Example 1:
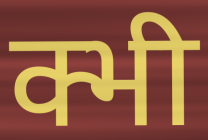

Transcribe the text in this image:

क्भी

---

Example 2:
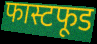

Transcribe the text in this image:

फास्‍टफूड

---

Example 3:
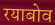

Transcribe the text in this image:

रयाबोव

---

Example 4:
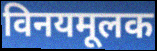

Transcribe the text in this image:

विनयमूलक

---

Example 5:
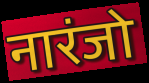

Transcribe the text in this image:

नारंजो